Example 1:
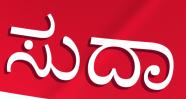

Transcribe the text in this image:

ಸುದಾ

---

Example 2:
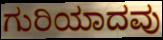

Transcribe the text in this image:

ಗುರಿಯಾದವು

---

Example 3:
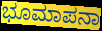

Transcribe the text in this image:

ಭೂಮಾಪನಾ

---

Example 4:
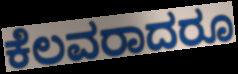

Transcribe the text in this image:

ಕೆಲವರಾದರೂ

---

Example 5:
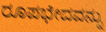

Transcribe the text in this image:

ರೂಪಭೇದವನ್ನು